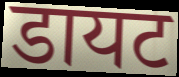
डायट